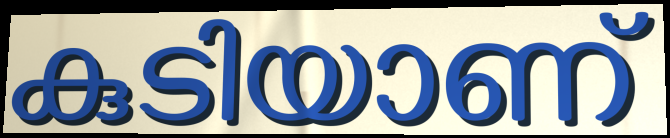
കുടിയാണ്